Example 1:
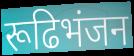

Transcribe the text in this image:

रूढिभंजन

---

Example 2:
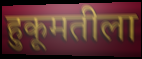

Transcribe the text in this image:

हुकूमतीला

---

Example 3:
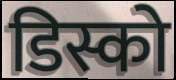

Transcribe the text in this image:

डिस्को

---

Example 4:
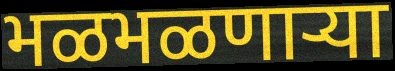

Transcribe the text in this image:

भळभळणाऱ्या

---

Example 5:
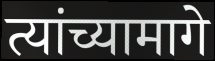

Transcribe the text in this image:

त्यांच्यामागे